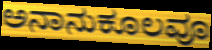
ಅನಾನುಕೂಲವೂ